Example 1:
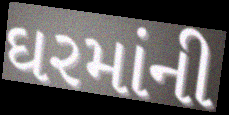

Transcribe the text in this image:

ઘરમાંની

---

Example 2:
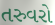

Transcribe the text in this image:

તરુવરો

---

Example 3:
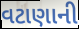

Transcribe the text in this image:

વટાણાની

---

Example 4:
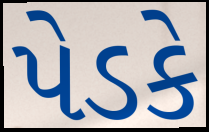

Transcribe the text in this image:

પેડકે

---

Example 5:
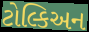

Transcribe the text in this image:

ટોલ્કિઅન